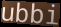
ubbi